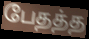
பேதத்த